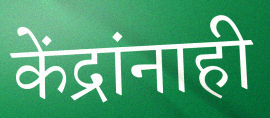
केंद्रांनाही